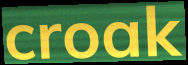
croak